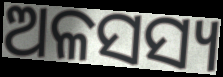
ଅଳସସ୍ୟ